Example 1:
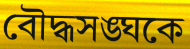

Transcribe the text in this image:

বৌদ্ধসঙ্ঘকে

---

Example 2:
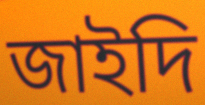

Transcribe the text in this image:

জাইদি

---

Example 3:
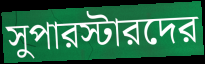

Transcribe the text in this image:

সুপারস্টারদের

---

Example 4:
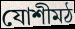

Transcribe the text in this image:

যোশীমঠ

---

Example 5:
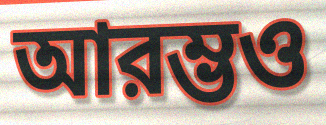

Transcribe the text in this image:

আরম্ভও